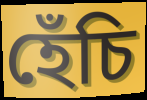
হেঁচি